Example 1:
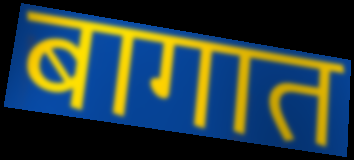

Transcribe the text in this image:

बागात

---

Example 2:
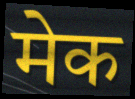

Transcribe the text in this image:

मेक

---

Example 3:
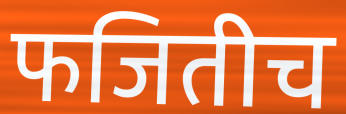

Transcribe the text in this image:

फजितीच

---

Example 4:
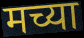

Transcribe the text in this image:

मच्या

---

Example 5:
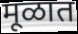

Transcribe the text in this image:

मूळात